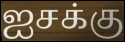
ஐசக்கு